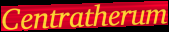
Centratherum